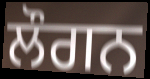
ਲੌਗਨ